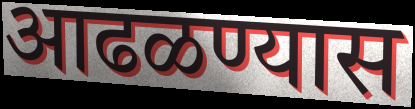
आढळण्यास